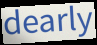
dearly